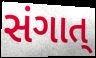
સંગાત્